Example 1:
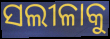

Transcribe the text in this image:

ସଲୀଳାକୁ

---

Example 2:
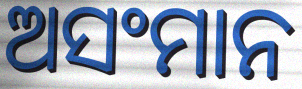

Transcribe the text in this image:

ଅସଂମାନ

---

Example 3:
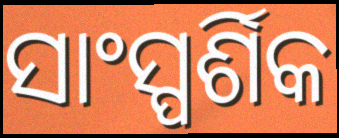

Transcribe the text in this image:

ସାଂସ୍ପର୍ଶିକ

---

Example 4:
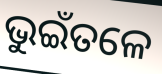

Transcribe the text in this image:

ଭୁଇଁତଳେ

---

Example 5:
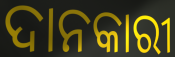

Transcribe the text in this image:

ଦାନକାରୀ